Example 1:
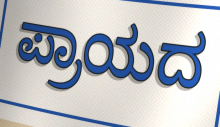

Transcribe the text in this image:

ಪ್ರಾಯದ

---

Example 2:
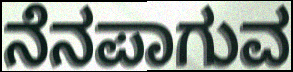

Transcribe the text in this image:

ನೆನಪಾಗುವ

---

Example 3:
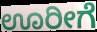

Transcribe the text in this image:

ಊರೀಗೆ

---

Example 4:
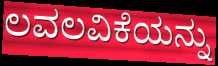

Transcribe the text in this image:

ಲವಲವಿಕೆಯನ್ನು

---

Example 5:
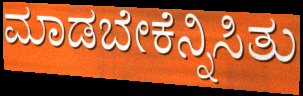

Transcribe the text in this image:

ಮಾಡಬೇಕೆನ್ನಿಸಿತು